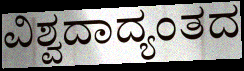
ವಿಶ್ವದಾದ್ಯಂತದ